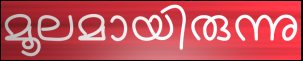
മൂലമായിരുന്നു